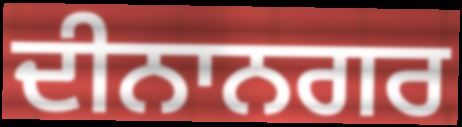
ਦੀਨਾਨਗਰ